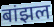
बांझल